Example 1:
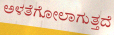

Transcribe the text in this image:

ಅಳತೆಗೋಲಾಗುತ್ತದೆ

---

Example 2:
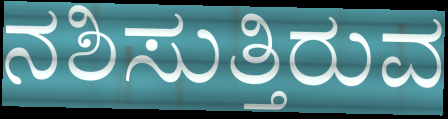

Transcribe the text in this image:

ನಶಿಸುತ್ತಿರುವ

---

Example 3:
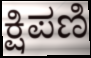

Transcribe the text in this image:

ಕ್ಷಿಪಣಿ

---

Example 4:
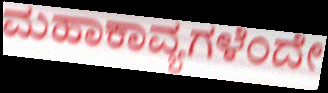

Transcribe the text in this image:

ಮಹಾಕಾವ್ಯಗಳೆಂದೇ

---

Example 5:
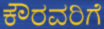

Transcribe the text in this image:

ಕೌರವರಿಗೆ